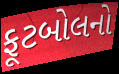
ફૂટબોલનો